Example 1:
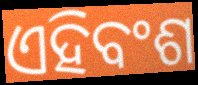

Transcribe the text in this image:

ଏହିବଂଶ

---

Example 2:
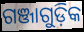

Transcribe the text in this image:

ଗଞ୍ଜାଗୁଡ଼ିକ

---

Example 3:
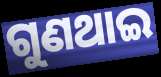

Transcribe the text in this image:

ଗୁଣଥାଇ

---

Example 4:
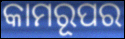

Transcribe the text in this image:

କାମରୂପର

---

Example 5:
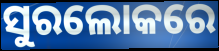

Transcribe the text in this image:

ସୁରଲୋକରେ